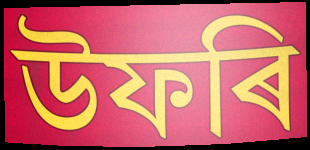
উফৰি